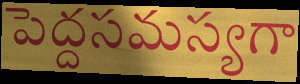
పెద్దసమస్యగా